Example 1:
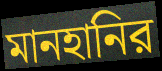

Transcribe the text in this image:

মানহানির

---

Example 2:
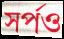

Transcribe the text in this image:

সর্পও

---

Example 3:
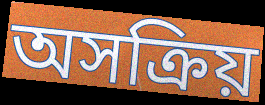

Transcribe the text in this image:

অসক্রিয়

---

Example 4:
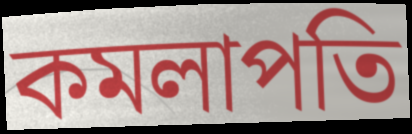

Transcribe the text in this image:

কমলাপতি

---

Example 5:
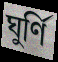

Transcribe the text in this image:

ঘুর্ণি